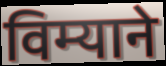
विम्याने